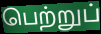
பெற்றுப்